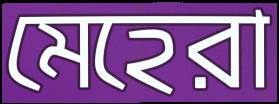
মেহেরা